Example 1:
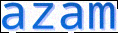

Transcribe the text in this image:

azam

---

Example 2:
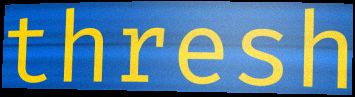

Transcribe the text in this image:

thresh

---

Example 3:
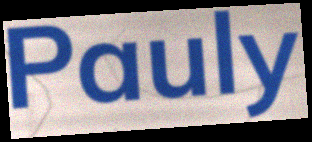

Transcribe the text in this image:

Pauly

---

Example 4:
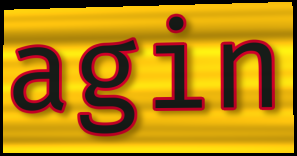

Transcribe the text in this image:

agin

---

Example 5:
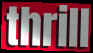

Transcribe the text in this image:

thrill